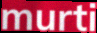
murti